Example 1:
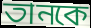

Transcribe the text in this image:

তানকে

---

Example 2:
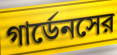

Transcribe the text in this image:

গার্ডেনসের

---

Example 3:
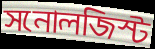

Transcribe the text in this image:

সনোলজিস্ট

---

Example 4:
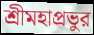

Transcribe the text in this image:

শ্রীমহাপ্রভুর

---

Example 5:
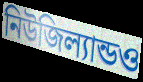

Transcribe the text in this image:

নিউজিল্যান্ডও